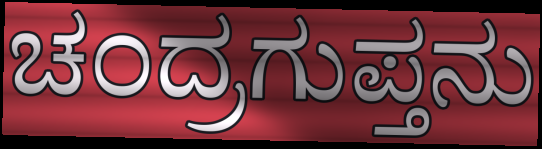
ಚಂದ್ರಗುಪ್ತನು